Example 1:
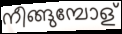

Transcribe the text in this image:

നീങ്ങുമ്പോള്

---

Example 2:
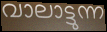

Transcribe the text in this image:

വാലാട്ടുന്ന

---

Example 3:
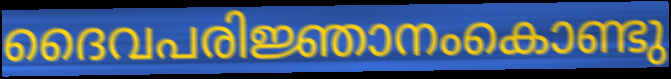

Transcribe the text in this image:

ദൈവപരിജ്ഞാനംകൊണ്ടു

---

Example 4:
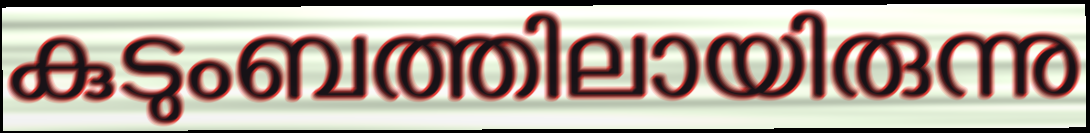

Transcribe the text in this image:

കുടുംബത്തിലായിരുന്നു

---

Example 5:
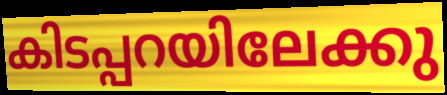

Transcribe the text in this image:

കിടപ്പറയിലേക്കു